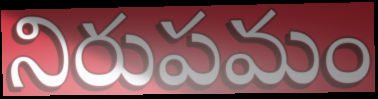
నిరుపమం